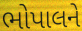
ભોપાલને